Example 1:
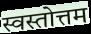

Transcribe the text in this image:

स्वस्तोत्तम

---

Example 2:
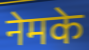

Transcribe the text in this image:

नेमके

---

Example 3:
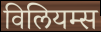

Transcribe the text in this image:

विलियम्स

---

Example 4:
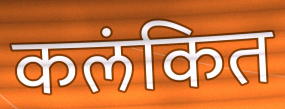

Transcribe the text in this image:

कलंकित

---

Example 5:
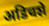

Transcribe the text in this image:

अडिचशे